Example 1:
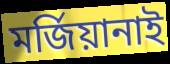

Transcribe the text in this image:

মৰ্জিয়ানাই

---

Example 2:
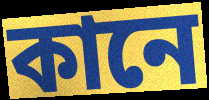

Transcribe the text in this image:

কানে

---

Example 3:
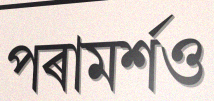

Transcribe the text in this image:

পৰামৰ্শও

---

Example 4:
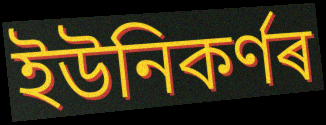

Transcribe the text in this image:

ইউনিকৰ্ণৰ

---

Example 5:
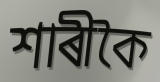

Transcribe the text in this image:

শাৰীকৈ